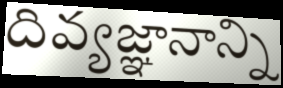
దివ్యజ్ఞానాన్ని